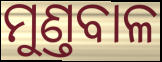
ମୁଣ୍ତବାଳ